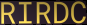
RIRDC